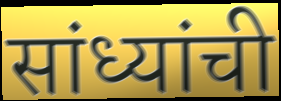
सांध्यांची